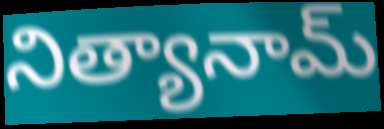
నిత్యానామ్